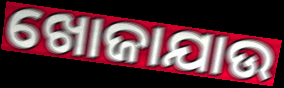
ଖୋଜାଯାଉ